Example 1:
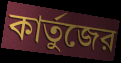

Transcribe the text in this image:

কার্তুজের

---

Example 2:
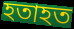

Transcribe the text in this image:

হতাহত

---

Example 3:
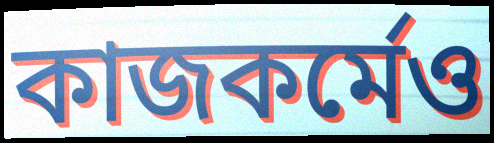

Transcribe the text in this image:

কাজকর্মেও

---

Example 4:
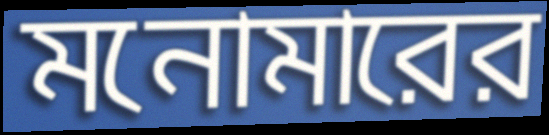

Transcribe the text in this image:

মনোমারের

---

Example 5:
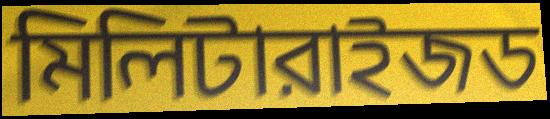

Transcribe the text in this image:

মিলিটারাইজড